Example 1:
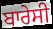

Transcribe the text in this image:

ਬਾਰੇਸੀ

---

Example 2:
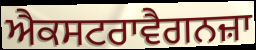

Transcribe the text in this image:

ਐਕਸਟਰਾਵੈਗਨਜ਼ਾ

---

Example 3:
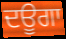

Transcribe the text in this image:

ਦਊਗਾ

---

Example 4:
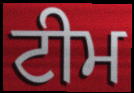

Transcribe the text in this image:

ਟੀਮ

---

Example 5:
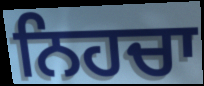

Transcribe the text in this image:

ਨਿਹਚਾ